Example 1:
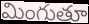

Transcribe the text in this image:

మింగుతూ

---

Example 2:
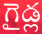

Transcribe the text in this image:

గైడ్ల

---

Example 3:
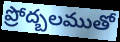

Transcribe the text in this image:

ప్రోద్బలముతో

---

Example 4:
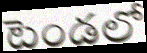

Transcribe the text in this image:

టెండలో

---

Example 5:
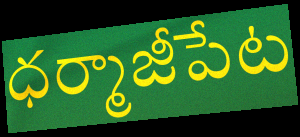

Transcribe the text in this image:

ధర్మాజీపేట